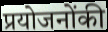
प्रयोजनोंकी